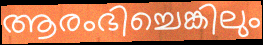
ആരംഭിച്ചെങ്കിലും